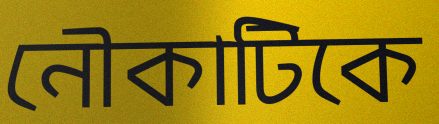
নৌকাটিকে